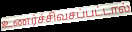
உணர்ச்சிவசப்பட்டால்